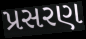
પ્રસરણ